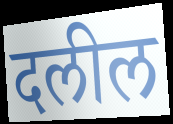
दलील